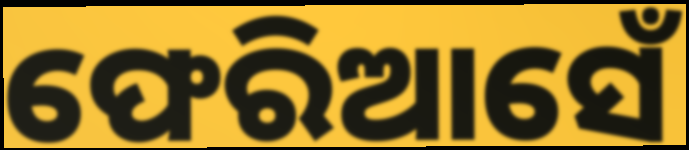
ଫେରିଆସେଁ